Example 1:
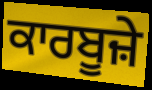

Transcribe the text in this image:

ਕਾਰਬੂਜ਼ੇ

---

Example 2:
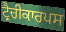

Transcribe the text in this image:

ਟ੍ਰੈਚੀਕਾਰਪਸ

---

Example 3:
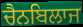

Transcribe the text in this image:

ਚੈਨਬਿਲਾਜ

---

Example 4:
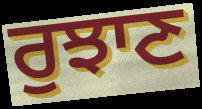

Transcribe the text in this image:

ਰੁਝਾਣ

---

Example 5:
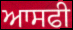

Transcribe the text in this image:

ਆਸਫੀ